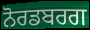
ਨੋਰਡਬਰਗ